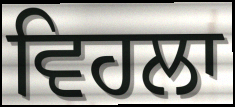
ਵਿਹਲਾ